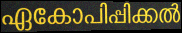
ഏകോപിപ്പിക്കൽ